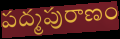
పద్మపురాణం